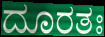
ದೂರತಃ